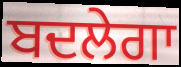
ਬਦਲੇਗਾ